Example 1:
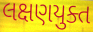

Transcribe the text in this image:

લક્ષણયુક્ત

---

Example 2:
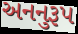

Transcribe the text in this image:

અનનુરૂપ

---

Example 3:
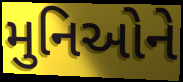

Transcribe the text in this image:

મુનિઓને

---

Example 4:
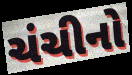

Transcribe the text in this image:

ચંચીનો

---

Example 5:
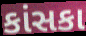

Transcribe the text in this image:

કાંસકા